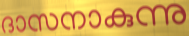
ദാസനാകുന്നു